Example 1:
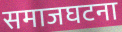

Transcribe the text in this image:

समाजघटना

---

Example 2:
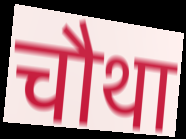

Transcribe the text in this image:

चौथा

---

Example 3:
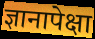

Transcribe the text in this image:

ज्ञानापेक्षा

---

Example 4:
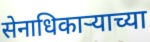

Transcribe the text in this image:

सेनाधिकाऱ्याच्या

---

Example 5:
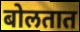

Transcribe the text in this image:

बोलतात